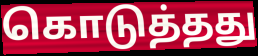
கொடுத்தது